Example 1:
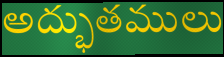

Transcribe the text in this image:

అద్భుతములు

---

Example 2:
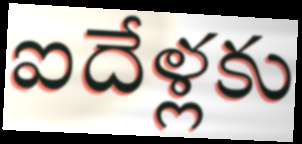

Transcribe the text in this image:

ఐదేళ్లకు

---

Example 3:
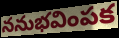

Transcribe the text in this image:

ననుభవింపక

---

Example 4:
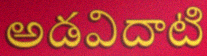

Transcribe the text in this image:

అడవిదాటి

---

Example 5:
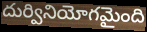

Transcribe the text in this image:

దుర్వినియోగమైంది